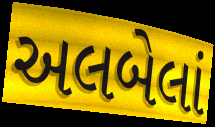
અલબેલાં